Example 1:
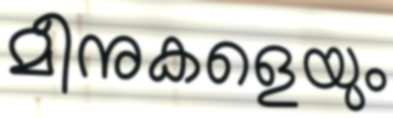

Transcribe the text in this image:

മീനുകളെയും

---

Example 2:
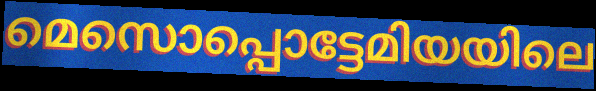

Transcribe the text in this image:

മെസൊപ്പൊട്ടേമിയയിലെ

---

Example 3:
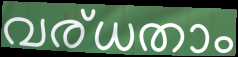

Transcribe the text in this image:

വര്ധതാം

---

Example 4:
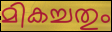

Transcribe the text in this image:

മികച്ചതും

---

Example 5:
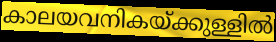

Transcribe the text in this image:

കാലയവനികയ്ക്കുള്ളിൽ